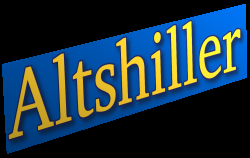
Altshiller